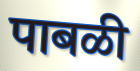
पाबळी